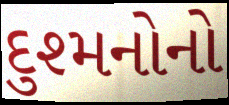
દુશ્મનોનો